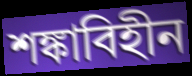
শঙ্কাবিহীন